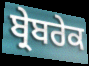
ਬ੍ਰੇਬਰੇਕ